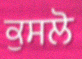
ਕੁਸਲੋ